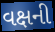
વક્ષની